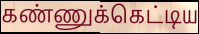
கண்ணுக்கெட்டிய